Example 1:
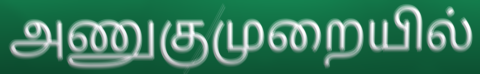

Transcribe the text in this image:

அணுகுமுறையில்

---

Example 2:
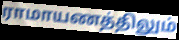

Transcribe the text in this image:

ராமாயணத்திலும்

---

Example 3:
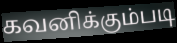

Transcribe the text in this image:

கவனிக்கும்படி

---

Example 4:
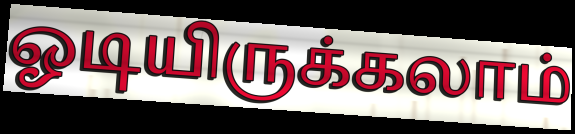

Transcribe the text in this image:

ஓடியிருக்கலாம்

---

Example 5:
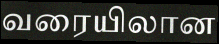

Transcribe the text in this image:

வரையிலான